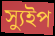
স্যুইপ